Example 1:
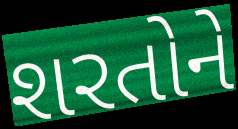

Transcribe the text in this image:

શરતોને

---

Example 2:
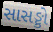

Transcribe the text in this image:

સાસઙ્કો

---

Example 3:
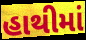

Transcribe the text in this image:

હાથીમાં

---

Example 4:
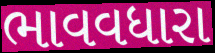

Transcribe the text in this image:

ભાવવધારા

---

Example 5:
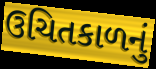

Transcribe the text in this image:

ઉચિતકાળનું